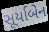
સૂર્યાબેન